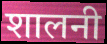
शालनी